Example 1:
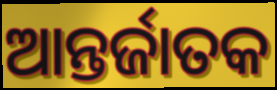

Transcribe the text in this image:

ଆନ୍ତର୍ଜାତକ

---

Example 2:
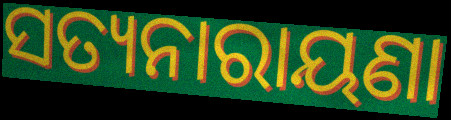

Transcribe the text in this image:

ସତ୍ୟନାରାୟଣା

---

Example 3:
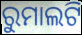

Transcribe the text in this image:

ରୁମାଲଟି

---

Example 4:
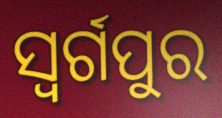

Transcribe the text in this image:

ସ୍ଵର୍ଗପୁର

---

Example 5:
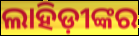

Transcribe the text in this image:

ଲାହିଡ଼ୀଙ୍କର